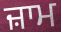
ਜ਼ਾਮ